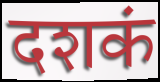
दशकं